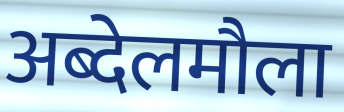
अब्देलमौला